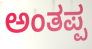
ಅಂತಪ್ಪ